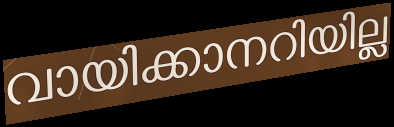
വായിക്കാനറിയില്ല